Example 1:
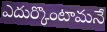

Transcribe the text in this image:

ఎదుర్కొంటామనే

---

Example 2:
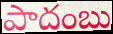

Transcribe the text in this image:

పాదంబు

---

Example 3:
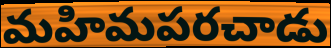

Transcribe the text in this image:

మహిమపరచాడు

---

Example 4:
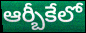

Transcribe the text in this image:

ఆర్బీకేలో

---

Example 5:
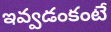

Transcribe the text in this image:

ఇవ్వడంకంటే